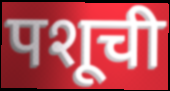
पशूची